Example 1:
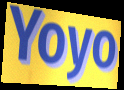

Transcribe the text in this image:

Yoyo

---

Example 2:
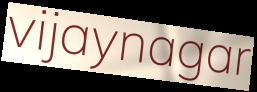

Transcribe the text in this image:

vijaynagar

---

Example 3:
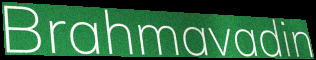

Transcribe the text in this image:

Brahmavadin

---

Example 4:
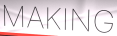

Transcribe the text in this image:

MAKING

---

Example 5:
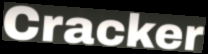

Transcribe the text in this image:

Cracker